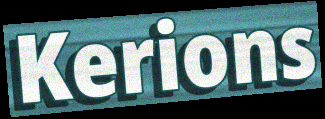
Kerions